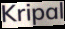
Kripal